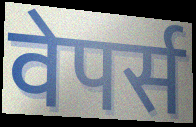
वेपर्स